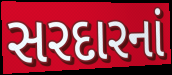
સરદારનાં